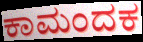
ಕಾಮಂದಕ